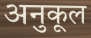
अनुकूल